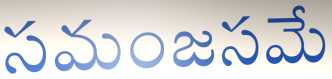
సమంజసమే